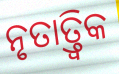
ନୃତାତ୍ତ୍ବିକ